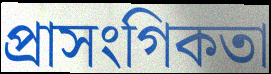
প্ৰাসংগিকতা